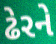
ઢેરને